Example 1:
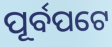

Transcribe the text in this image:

ପୂର୍ବପଟେ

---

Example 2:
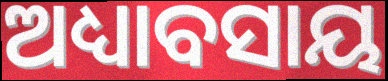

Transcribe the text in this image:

ଅଧ୍ୟାବସାୟ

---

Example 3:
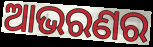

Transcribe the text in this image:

ଆଭରଣର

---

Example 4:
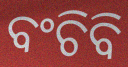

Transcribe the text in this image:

ବଂଚିବି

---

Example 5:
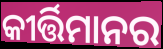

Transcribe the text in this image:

କୀର୍ତ୍ତିମାନର